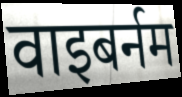
वाइबर्नम